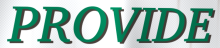
PROVIDE